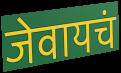
जेवायचं